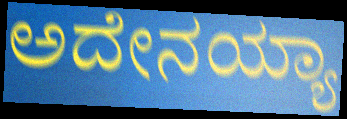
ಅದೇನಯ್ಯಾ